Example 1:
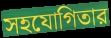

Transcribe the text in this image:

সহযোগিতার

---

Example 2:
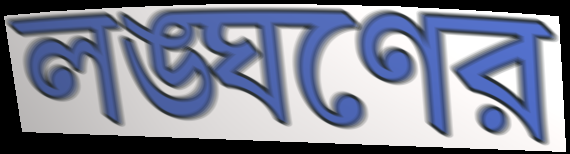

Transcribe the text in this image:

লঙ্ঘণের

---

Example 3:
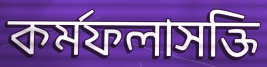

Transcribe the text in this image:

কর্মফলাসক্তি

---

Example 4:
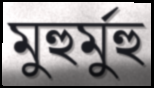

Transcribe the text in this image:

মুহুর্মুহু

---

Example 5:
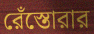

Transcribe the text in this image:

রেঁস্তোরার